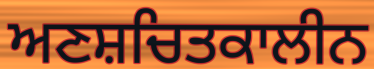
ਅਣਸ਼ਚਿਤਕਾਲੀਨ